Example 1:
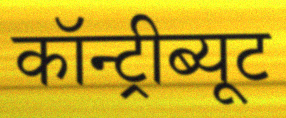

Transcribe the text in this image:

कॉन्ट्रीब्यूट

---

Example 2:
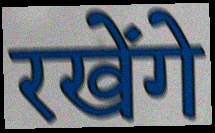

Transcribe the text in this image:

रखेंगे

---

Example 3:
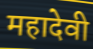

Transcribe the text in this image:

महादेवी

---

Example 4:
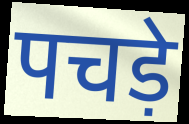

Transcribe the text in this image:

पचड़े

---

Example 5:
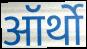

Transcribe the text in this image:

ऑर्थो